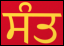
ਸੰਤ